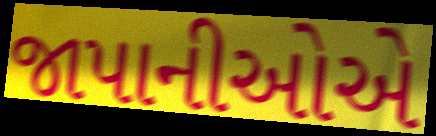
જાપાનીઓએ